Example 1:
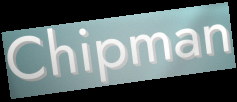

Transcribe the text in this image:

Chipman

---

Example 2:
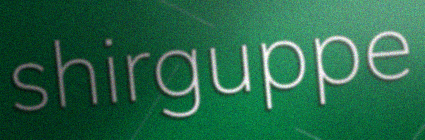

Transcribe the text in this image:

shirguppe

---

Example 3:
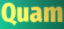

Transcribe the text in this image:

Quam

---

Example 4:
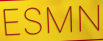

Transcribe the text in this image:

ESMN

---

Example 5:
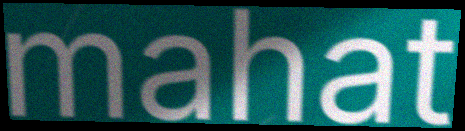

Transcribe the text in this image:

mahat